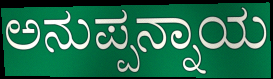
ಅನುಪ್ಪನ್ನಾಯ